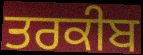
ਤਰਕੀਬ